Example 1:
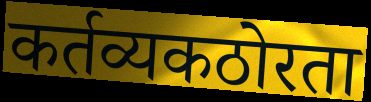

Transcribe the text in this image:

कर्तव्यकठोरता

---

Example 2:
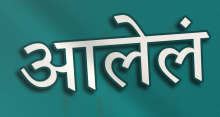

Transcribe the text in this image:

आलेलं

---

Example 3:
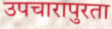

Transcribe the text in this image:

उपचारापुरता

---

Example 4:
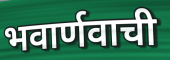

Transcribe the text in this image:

भवार्णवाची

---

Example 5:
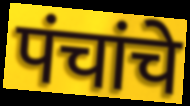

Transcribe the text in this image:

पंचांचे